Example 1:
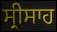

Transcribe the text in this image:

ਸ੍ਰੀਸਾਹ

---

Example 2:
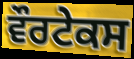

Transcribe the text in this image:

ਵੌਰਟੇਕਸ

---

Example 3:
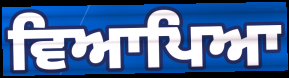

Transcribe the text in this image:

ਵਿਆਪਿਆ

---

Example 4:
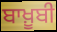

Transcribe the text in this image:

ਬਾਖ਼ੂਬੀ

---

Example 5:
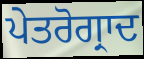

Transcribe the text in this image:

ਪੇਤਰੋਗ੍ਰਾਦ